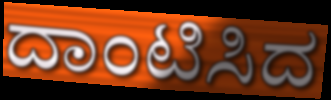
ದಾಂಟಿಸಿದ